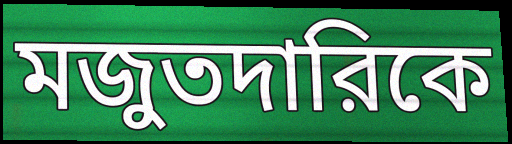
মজুতদারিকে